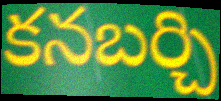
కనబర్చి